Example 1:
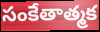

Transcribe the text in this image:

సంకేతాత్మక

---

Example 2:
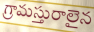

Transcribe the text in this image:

గ్రామస్తురాలైన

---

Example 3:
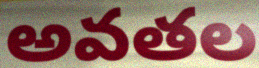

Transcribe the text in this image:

అవతల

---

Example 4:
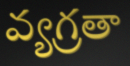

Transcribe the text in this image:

వ్యగ్రతా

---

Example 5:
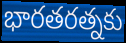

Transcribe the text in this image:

భారతరత్నకు